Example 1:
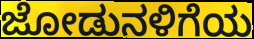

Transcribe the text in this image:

ಜೋಡುನಳಿಗೆಯ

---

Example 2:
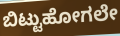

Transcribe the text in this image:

ಬಿಟ್ಟುಹೋಗಲೇ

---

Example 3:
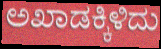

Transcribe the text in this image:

ಅಖಾಡಕ್ಕಿಳಿದು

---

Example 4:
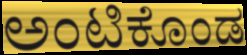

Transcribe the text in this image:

ಅಂಟಿಕೊಂಡ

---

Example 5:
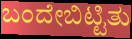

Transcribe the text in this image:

ಬಂದೇಬಿಟ್ಟಿತು